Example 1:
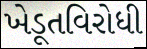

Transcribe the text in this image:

ખેડૂતવિરોધી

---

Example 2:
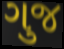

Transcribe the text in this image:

ગુજ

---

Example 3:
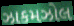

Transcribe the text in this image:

ઝાકમઝોલ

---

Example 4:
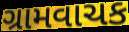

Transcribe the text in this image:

ગ્રામવાચક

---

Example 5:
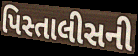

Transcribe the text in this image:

પિસ્તાલીસની